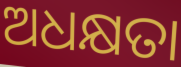
ଅଧକ୍ଷତା